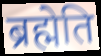
ब्रह्मेति